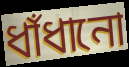
ধাঁধানো